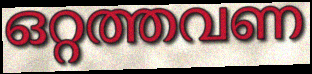
ഒറ്റത്തവണ